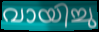
വായിച്ചു